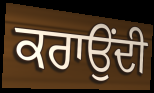
ਕਰਾਉਂਦੀ